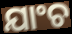
ଯାଂଚ